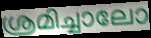
ശ്രമിച്ചാലോ